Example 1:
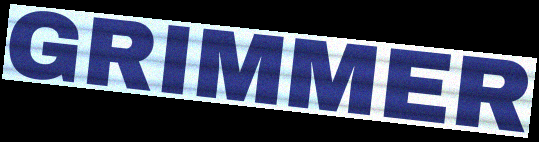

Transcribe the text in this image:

GRIMMER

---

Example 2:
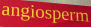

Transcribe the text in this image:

angiosperm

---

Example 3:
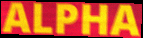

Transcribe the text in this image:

ALPHA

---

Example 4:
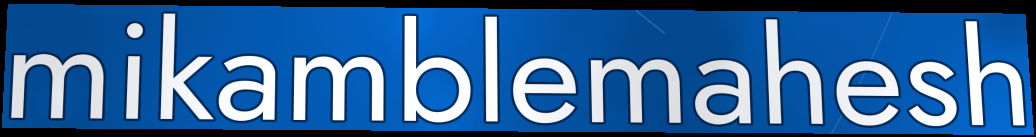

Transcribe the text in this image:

mikamblemahesh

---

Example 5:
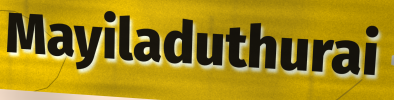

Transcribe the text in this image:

Mayiladuthurai